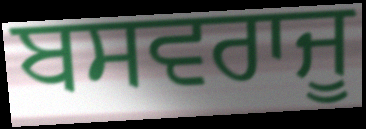
ਬਸਵਰਾਜੂ